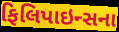
ફિલિપાઇન્સના